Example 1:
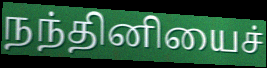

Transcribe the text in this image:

நந்தினியைச்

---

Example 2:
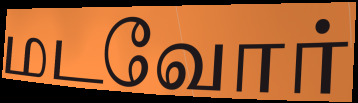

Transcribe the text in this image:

மடவோர்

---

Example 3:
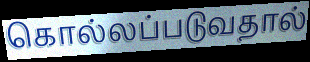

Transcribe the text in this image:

கொல்லப்படுவதால்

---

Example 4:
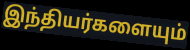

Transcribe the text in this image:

இந்தியர்களையும்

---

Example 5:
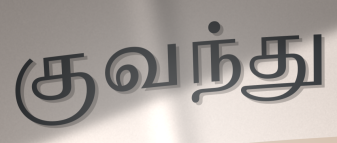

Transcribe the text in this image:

குவந்து